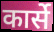
कार्से